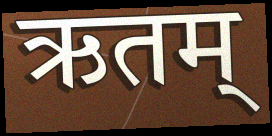
ऋतम्